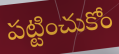
పట్టించుకోం